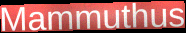
Mammuthus